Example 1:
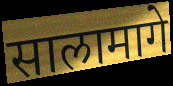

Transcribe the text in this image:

सालामागे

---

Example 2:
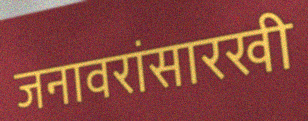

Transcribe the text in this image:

जनावरांसारखी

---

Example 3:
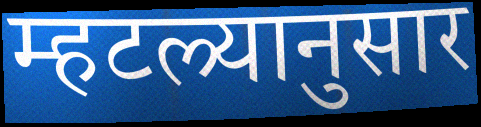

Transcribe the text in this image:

म्हटल्यानुसार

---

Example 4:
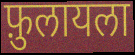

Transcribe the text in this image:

फ़ुलायला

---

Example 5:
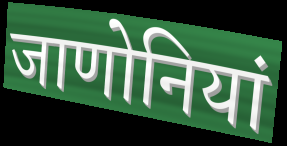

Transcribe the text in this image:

जाणोनियां